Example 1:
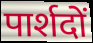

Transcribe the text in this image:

पार्शदों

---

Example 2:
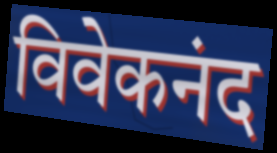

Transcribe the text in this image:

विवेकनंद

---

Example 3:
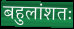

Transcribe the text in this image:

बहुलांशतः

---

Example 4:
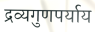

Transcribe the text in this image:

द्रव्यगुणपर्याय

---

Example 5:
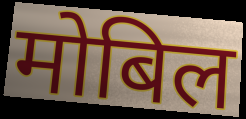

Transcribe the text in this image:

मोबिल